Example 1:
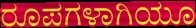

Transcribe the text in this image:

ರೂಪಗಳಾಗಿಯೂ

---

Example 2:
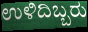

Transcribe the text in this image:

ಉಳಿದಿಬ್ಬರು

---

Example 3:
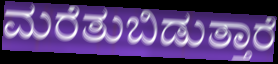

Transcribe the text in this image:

ಮರೆತುಬಿಡುತ್ತಾರೆ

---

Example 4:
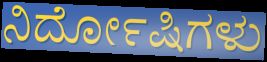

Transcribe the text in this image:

ನಿರ್ದೋಷಿಗಳು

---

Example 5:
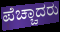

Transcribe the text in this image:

ಪೆಚ್ಚಾದರು